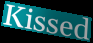
Kissed